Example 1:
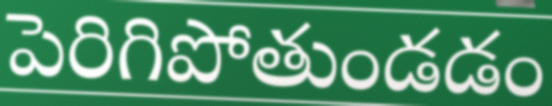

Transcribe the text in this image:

పెరిగిపోతుండడం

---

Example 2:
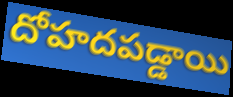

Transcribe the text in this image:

దోహదపడ్డాయి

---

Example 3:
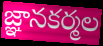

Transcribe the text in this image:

జ్ఞానకర్మల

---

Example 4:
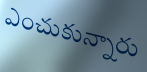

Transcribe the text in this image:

ఎంచుకున్నారు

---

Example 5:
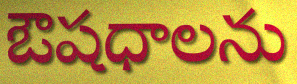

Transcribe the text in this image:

ఔషధాలను